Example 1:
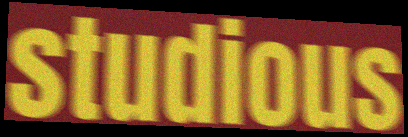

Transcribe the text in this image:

studious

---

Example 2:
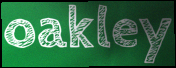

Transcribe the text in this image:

oakley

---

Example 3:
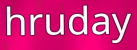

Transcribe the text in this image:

hruday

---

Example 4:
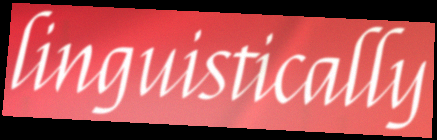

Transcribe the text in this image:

linguistically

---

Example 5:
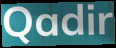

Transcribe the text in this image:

Qadir